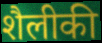
शैलीकी